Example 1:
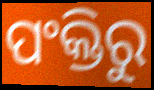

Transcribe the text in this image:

ପଂକ୍ତିରୁ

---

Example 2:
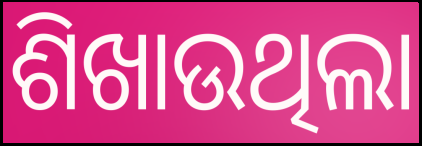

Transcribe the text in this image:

ଶିଖାଉଥିଲା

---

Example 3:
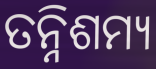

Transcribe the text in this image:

ତନ୍ନିଶମ୍ୟ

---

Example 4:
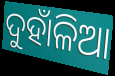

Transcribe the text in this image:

ଦୁହାଁଳିଆ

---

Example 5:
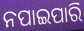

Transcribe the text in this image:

ନପାଇପାରି